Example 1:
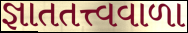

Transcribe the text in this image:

જ્ઞાતતત્ત્વવાળા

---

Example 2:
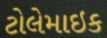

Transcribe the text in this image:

ટોલેમાઇક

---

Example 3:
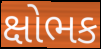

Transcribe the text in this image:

ક્ષોભક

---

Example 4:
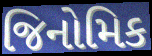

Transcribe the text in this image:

જિનોમિક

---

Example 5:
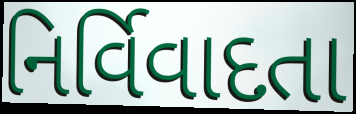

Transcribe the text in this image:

નિર્વિવાદતા